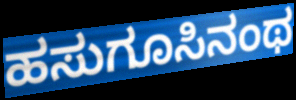
ಹಸುಗೂಸಿನಂಥ